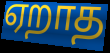
ஏறாத